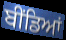
ਬੀਂਡਿਆਂ